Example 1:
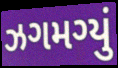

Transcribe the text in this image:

ઝગમગ્યું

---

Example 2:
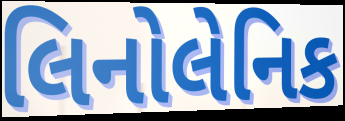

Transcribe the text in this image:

લિનોલેનિક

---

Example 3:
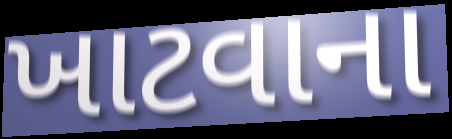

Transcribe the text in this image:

ખાટવાના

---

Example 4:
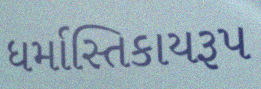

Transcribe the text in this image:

ધર્માસ્તિકાયરૂપ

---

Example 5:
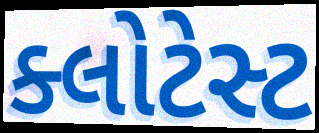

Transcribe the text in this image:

ક્લોટેસ્ટ